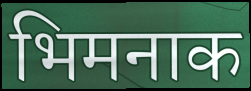
भिमनाक